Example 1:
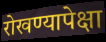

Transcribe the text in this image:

रोखण्यापेक्षा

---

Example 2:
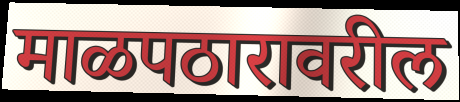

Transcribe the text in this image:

माळपठारावरील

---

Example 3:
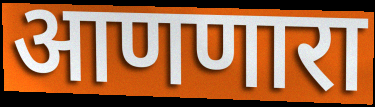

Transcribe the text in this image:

आणणारा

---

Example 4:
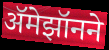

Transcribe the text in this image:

ॲमेझॉनने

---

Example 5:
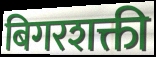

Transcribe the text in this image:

बिगरशक्ती